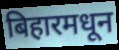
बिहारमधून